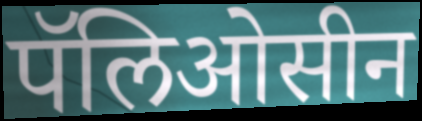
पॅलिओसीन